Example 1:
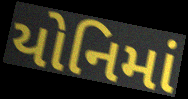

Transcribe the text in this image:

યોનિમાં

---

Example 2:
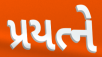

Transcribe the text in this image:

પ્રયત્ને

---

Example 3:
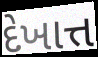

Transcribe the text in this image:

દેખાત્ત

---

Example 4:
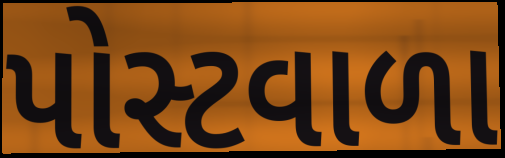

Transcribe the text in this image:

પોસ્ટવાળા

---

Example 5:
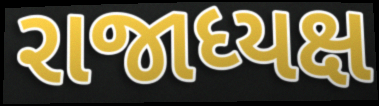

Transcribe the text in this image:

રાજાધ્યક્ષ